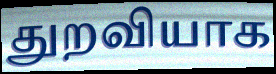
துறவியாக